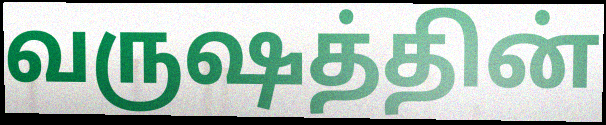
வருஷத்தின்